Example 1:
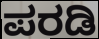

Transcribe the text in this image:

ಪರಡಿ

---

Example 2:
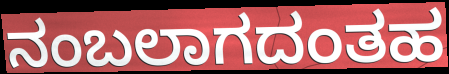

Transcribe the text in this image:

ನಂಬಲಾಗದಂತಹ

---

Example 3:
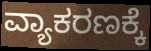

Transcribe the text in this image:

ವ್ಯಾಕರಣಕ್ಕೆ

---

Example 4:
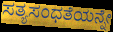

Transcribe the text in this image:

ಸತ್ಯಸಂಧತೆಯನ್ನೇ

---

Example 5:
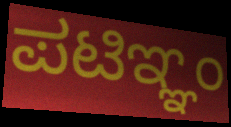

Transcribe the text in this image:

ಪಟಿಞ್ಞಂ